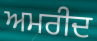
ਅਮਰੀਦ